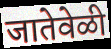
जातेवेळी